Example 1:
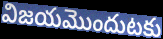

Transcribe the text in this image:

విజయమొందుటకు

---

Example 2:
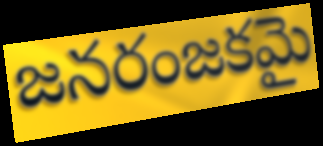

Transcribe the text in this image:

జనరంజకమై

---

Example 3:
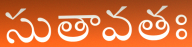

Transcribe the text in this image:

సుతావతః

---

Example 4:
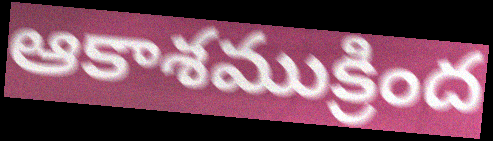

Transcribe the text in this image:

ఆకాశముక్రింద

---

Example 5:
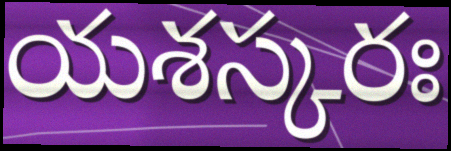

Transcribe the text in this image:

యశస్కరః